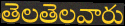
తెలతెలవారు